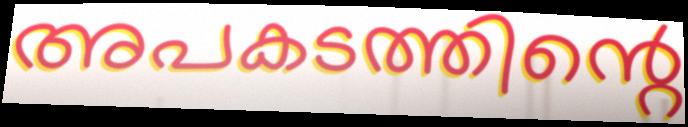
അപകടത്തിന്റെ